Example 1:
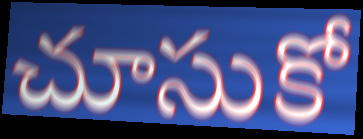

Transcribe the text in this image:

చూసుకో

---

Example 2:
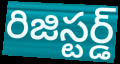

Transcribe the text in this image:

రిజిస్టర్డ్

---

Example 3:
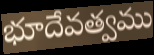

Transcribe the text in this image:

భూదేవత్వము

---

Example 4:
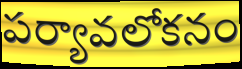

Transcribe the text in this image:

పర్యావలోకనం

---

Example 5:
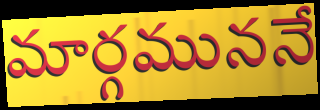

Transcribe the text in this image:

మార్గముననే